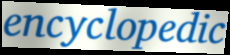
encyclopedic